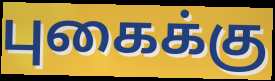
புகைக்கு